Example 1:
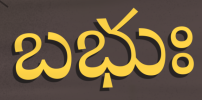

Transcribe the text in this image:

బభుః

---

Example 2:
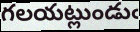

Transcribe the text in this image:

గలయట్లుండుఁ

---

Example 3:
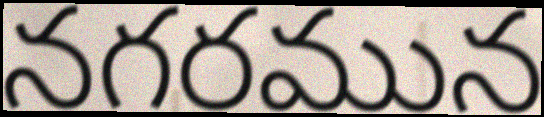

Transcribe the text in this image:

నగరమున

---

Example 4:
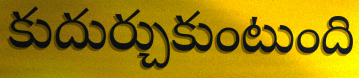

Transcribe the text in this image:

కుదుర్చుకుంటుంది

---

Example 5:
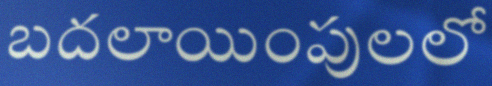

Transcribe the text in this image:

బదలాయింపులలో